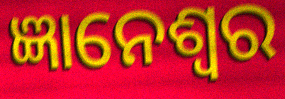
ଜ୍ଞାନେଶ୍ୱର